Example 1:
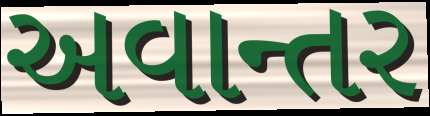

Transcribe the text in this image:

અવાન્તર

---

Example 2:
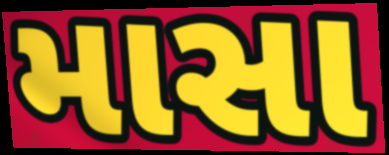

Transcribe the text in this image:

માસા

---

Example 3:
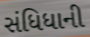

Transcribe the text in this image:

સંધિધાની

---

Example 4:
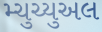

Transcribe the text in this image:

મ્ચુચ્યુઅલ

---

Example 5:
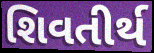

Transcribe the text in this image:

શિવતીર્થ